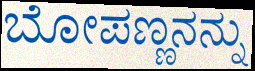
ಬೋಪಣ್ಣನನ್ನು